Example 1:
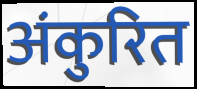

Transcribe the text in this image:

अंकुरित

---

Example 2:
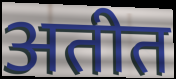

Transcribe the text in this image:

अतीत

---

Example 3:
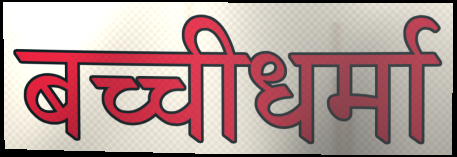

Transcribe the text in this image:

बच्चीधर्मा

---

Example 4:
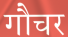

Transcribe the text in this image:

गौचर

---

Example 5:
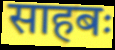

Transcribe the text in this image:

साहबः